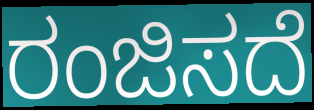
ರಂಜಿಸದೆ